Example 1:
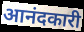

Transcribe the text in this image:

आनंदकारी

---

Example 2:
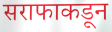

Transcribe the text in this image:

सराफाकडून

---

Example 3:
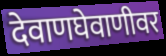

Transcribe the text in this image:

देवाणघेवाणीवर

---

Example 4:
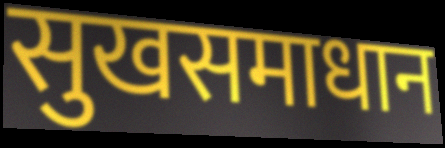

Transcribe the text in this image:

सुखसमाधान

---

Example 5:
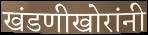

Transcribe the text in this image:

खंडणीखोरांनी